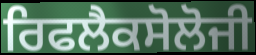
ਰਿਫਲੈਕਸੋਲੋਜੀ